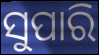
ସୁପାରି